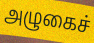
அழுகைச்